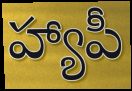
హ్యాపీ